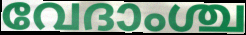
വേദാംശ്ച